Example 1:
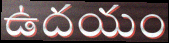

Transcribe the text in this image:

ఉదయం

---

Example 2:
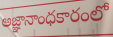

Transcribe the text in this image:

అజ్ఞానాంధకారంలో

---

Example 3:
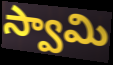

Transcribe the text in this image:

స్వామి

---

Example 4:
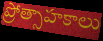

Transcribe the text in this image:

ప్రోత్సాహకాలు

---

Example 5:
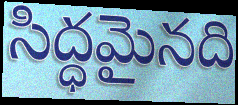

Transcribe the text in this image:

సిద్ధమైనది